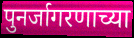
पुनर्जागरणाच्या